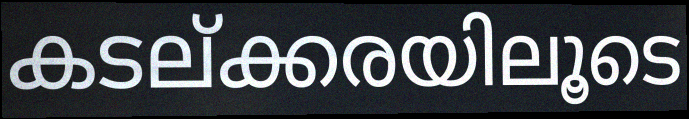
കടല്ക്കരയിലൂടെ